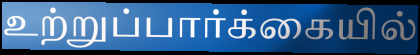
உற்றுப்பார்க்கையில்